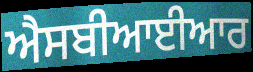
ਐਸਬੀਆਈਆਰ